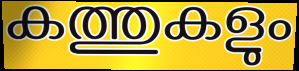
കത്തുകളും